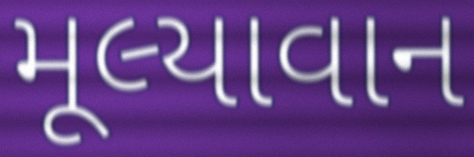
મૂલ્યાવાન